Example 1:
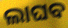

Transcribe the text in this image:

ଲାଘବ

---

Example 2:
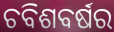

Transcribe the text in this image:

ଚବିଶବର୍ଷର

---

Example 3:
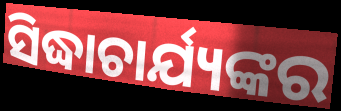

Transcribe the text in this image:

ସିଦ୍ଧାଚାର୍ଯ୍ୟଙ୍କର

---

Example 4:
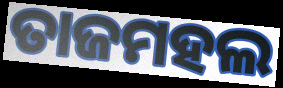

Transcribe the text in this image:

ତାଜମହଲ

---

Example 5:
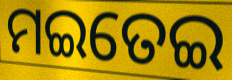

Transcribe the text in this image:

ମଇତେଇ